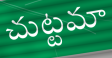
చుట్టమా